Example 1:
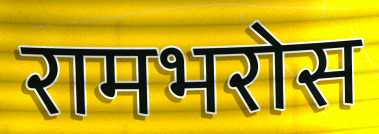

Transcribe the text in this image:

रामभरोस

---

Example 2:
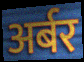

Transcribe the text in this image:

अर्बर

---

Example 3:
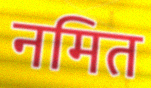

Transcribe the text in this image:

नमित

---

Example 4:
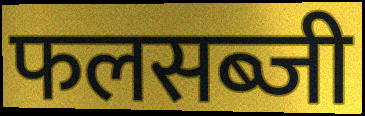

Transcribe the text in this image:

फलसब्जी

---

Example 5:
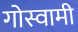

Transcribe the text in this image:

गोस्वामी